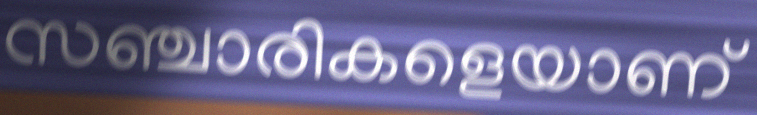
സഞ്ചാരികളെയാണ്